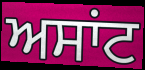
ਅਸਾਂਟ